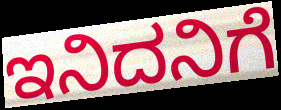
ಇನಿದನಿಗೆ